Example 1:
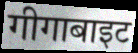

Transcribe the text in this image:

गीगाबाइट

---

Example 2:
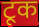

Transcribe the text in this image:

टूक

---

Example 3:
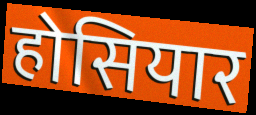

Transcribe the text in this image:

होसियार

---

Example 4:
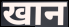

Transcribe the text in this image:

खान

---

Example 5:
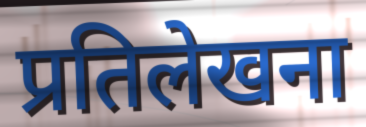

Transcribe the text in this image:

प्रतिलेखना